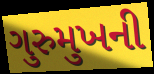
ગુરુમુખની